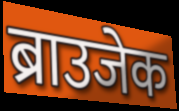
ब्राउजेक